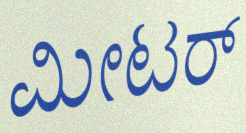
ಮೀಟರ್